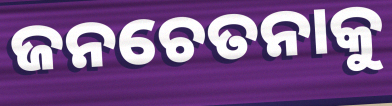
ଜନଚେତନାକୁ